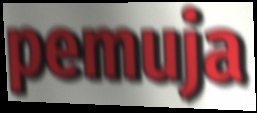
pemuja